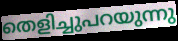
തെളിച്ചുപറയുന്നു